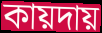
কায়দায়